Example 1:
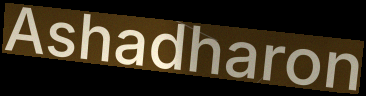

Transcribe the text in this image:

Ashadharon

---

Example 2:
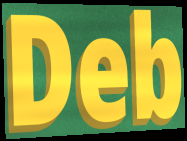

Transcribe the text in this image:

Deb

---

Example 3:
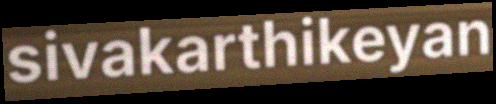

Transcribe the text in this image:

sivakarthikeyan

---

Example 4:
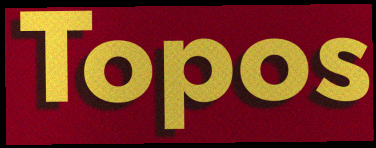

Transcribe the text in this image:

Topos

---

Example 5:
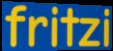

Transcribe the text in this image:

fritzi